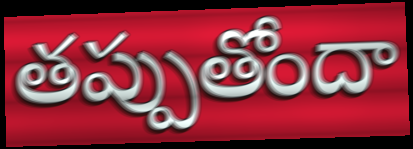
తప్పుతోందా